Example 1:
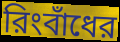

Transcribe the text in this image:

রিংবাঁধের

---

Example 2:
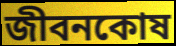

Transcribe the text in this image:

জীবনকোষ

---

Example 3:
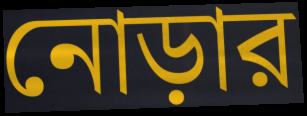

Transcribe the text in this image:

নোড়ার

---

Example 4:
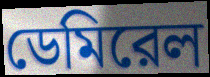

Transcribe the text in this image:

ডেমিরেল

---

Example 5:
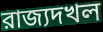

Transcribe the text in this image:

রাজ্যদখল